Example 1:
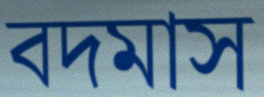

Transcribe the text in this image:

বদমাস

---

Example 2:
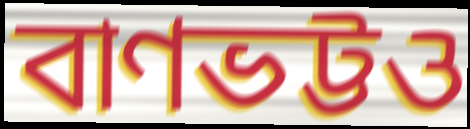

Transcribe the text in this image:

বাণভট্টও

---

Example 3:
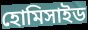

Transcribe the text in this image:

হোমিসাইড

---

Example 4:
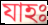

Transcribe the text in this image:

যাহঃ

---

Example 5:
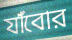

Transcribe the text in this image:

র্যাঁবোর